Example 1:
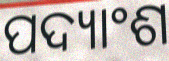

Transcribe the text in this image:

ପଦ୍ୟାଂଶ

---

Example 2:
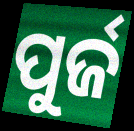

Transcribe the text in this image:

ପୁର୍ଜ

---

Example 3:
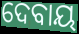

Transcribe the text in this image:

ଦେବାୟ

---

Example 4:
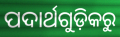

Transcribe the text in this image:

ପଦାର୍ଥଗୁଡ଼ିକରୁ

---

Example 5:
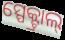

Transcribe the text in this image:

ସ୍ପେକ୍ଟ୍ରାଲ୍